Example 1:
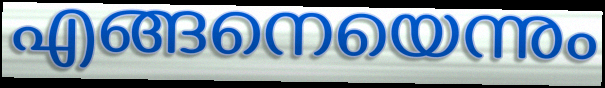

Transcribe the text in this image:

എങ്ങനെയെന്നും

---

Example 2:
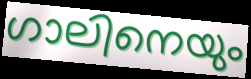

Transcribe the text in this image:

ഗാലിനെയും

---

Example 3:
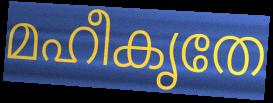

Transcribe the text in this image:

മഹീകൃതേ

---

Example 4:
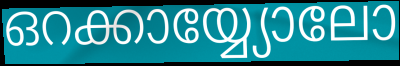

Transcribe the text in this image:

ഒറക്കായ്യ്യോലോ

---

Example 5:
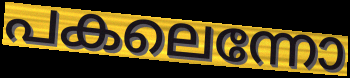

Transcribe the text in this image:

പകലെന്നോ